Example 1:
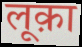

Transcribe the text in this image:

लूक़ा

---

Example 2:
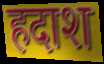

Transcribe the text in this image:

हदाश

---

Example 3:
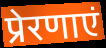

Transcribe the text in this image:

प्रेरणाएं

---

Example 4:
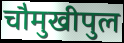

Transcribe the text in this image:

चौमुखीपुल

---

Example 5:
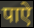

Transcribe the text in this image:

पाऐ